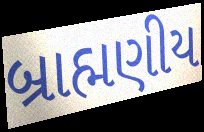
બ્રાહ્મણીય